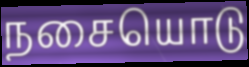
நசையொடு